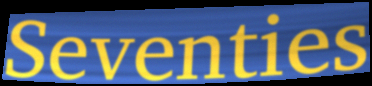
Seventies